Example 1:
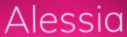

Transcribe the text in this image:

Alessia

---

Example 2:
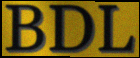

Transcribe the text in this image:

BDL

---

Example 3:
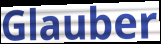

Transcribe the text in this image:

Glauber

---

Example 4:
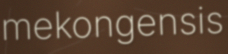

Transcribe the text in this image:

mekongensis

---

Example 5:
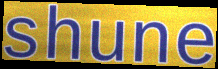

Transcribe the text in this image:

shune